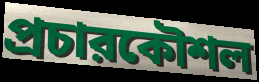
প্রচারকৌশল